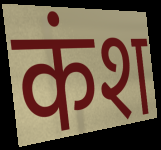
कंश